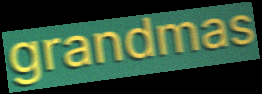
grandmas